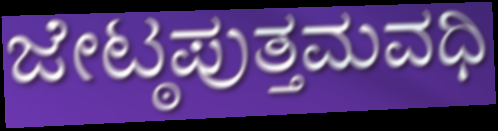
ಜೇಟ್ಠಪುತ್ತಮವಧಿ